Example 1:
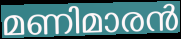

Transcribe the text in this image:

മണിമാരൻ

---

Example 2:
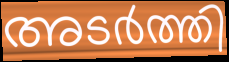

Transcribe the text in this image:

അടർത്തി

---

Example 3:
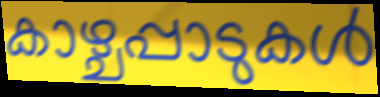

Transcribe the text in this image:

കാഴ്ചപ്പാടുകൾ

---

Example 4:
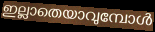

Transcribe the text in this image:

ഇല്ലാതെയാവുമ്പോൾ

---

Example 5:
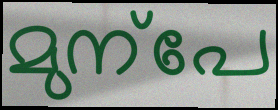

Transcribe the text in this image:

മുന്പേ